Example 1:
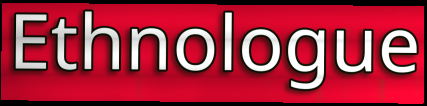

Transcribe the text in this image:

Ethnologue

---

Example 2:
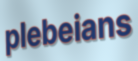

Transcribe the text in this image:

plebeians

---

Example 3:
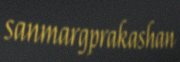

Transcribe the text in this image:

sanmargprakashan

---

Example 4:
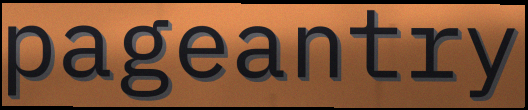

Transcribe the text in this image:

pageantry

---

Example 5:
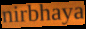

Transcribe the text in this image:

nirbhaya